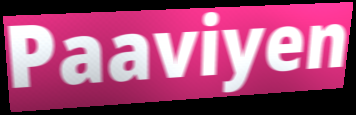
Paaviyen